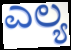
ಎಲ್ಯ